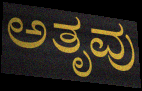
ಅತೃವು